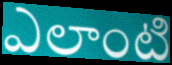
ఎలాంటి